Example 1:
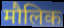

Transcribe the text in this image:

मौलिक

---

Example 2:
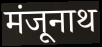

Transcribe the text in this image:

मंजूनाथ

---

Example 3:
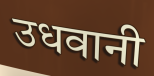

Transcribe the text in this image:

उधवानी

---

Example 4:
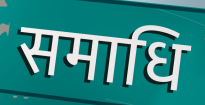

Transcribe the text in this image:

समाधि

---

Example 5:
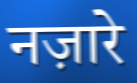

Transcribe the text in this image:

नज़ारे